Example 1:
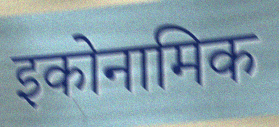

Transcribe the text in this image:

इकोनामिक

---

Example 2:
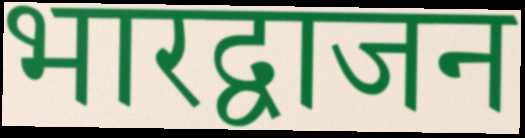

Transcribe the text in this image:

भारद्वाजन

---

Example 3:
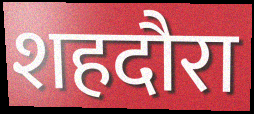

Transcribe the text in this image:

शहदौरा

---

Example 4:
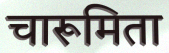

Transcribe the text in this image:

चारूमिता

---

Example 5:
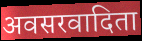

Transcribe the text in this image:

अवसरवादिता